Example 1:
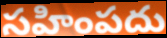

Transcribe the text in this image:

సహింపదు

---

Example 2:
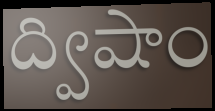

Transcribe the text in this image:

ద్విషాం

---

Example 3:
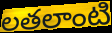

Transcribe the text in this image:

లతలాంటి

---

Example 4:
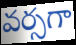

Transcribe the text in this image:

వర్సగా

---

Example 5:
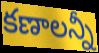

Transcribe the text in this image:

కణాలన్నీ